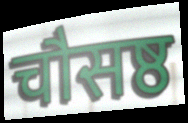
चौसष्ठ